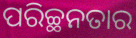
ପରିଚ୍ଛନତାର